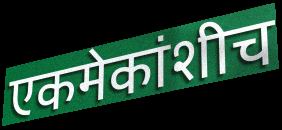
एकमेकांशीच